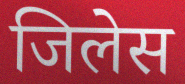
जिलेस